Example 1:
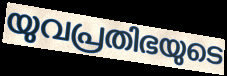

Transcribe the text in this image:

യുവപ്രതിഭയുടെ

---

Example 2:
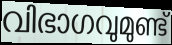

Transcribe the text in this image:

വിഭാഗവുമുണ്ട്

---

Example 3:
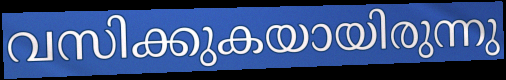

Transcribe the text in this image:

വസിക്കുകയായിരുന്നു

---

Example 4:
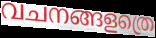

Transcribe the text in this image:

വചനങ്ങളത്രെ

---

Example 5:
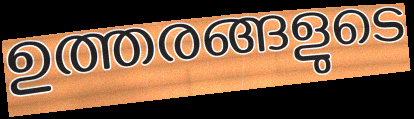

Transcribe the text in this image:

ഉത്തരങ്ങളുടെ